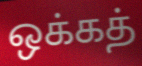
ஒக்கத்